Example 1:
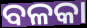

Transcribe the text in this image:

ବଳକା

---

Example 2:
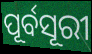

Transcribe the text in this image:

ପୂର୍ବସୂରୀ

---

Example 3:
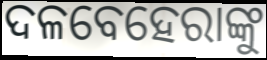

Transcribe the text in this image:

ଦଳବେହେରାଙ୍କୁ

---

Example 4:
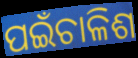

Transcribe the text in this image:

ପଇଁଚାଳିଶ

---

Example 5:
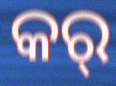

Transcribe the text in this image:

କର୍